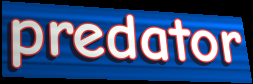
predator